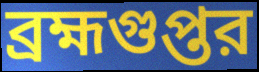
ব্রহ্মগুপ্তর